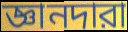
জ্ঞানদারা